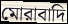
মোরাবাদি